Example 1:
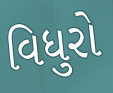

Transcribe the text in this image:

વિધુરો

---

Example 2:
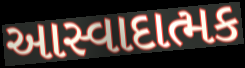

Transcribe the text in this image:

આસ્વાદાત્મક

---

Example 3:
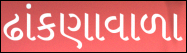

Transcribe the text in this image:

ઢાંકણાવાળા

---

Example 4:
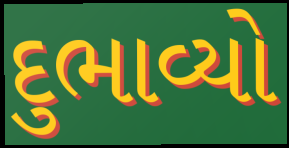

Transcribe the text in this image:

દુભાવ્યો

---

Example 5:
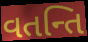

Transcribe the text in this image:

વતન્તિ